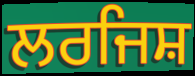
ਲਰਜਿਸ਼